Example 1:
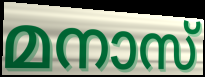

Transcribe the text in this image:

മനാസ്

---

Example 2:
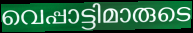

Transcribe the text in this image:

വെപ്പാട്ടിമാരുടെ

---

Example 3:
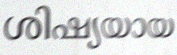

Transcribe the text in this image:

ശിഷ്യയായ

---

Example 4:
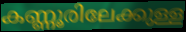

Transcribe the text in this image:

കണ്ണൂരിലേക്കുള്ള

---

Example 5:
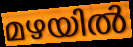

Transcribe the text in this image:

മഴയിൽ